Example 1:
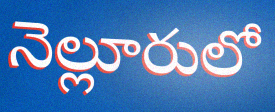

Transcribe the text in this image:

నెల్లూరులో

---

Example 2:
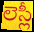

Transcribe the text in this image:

లెస్లీ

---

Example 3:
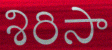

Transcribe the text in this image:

శిరిసా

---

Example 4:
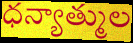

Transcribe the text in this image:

ధన్యాత్ముల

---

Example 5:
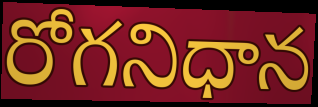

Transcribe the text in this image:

రోగనిధాన